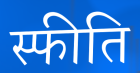
स्फीति